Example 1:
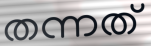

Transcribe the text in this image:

തന്നത്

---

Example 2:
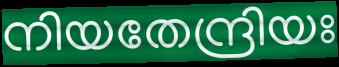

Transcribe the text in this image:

നിയതേന്ദ്രിയഃ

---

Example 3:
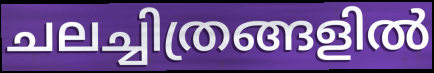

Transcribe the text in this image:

ചലച്ചിത്രങ്ങളിൽ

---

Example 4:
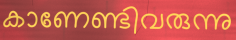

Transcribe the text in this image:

കാണേണ്ടിവരുന്നു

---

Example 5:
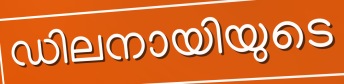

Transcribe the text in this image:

ഡിലനായിയുടെ